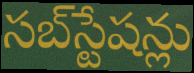
సబ్‌స్టేషన్లు